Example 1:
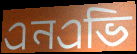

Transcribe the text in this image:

এনএভি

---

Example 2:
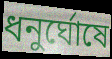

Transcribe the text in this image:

ধনুর্ঘোষে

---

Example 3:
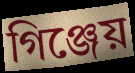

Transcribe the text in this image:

গিঞ্জেয়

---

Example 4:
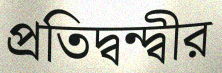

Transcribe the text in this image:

প্রতিদ্বন্দ্বীর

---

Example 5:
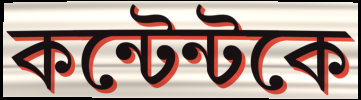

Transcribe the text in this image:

কন্টেন্টকে